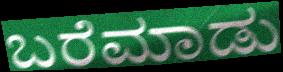
ಬರೆಮಾಡು